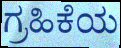
ಗ್ರಹಿಕೆಯ